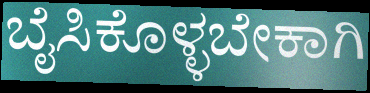
ಬೈಸಿಕೊಳ್ಳಬೇಕಾಗಿ